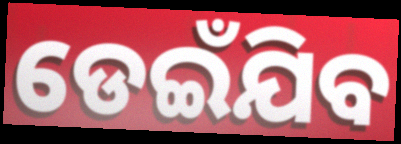
ଡେଇଁଯିବ